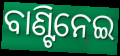
ବାଣ୍ଟିନେଇ